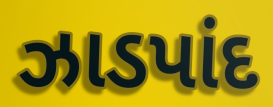
ઝાડપાંદ